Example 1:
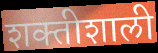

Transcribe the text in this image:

शक्‍तीशाली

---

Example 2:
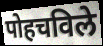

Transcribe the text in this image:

पोहचविले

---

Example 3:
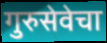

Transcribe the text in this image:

गुरुसेवेचा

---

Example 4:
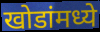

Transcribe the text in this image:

खोडांमध्ये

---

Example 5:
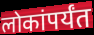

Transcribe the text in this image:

लोकांपर्यंत